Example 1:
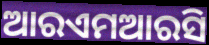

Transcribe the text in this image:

ଆରଏମଆରସି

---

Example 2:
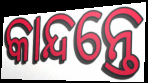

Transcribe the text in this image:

କାନ୍ଦନ୍ତେ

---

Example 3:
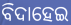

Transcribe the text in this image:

ବିଦାହେଇ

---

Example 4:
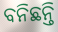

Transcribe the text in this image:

ବନିଛନ୍ତି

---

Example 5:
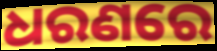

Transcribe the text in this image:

ଧରଣରେ